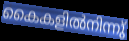
കൈകളിൽനിന്നു്